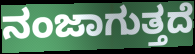
ನಂಜಾಗುತ್ತದೆ